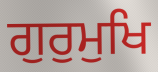
ਗੁਰੁਮੁਖਿ